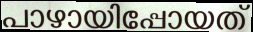
പാഴായിപ്പോയത്